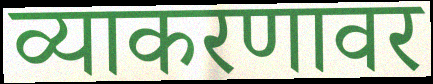
व्याकरणावर